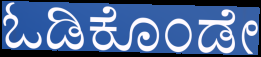
ಓಡಿಕೊಂಡೇ